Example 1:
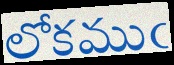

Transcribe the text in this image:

లోకముఁ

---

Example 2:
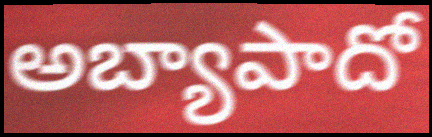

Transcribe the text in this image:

అబ్యాపాదో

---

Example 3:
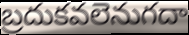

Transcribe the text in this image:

బ్రదుకవలెనుగదా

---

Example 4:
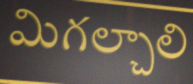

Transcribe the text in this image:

మిగల్చాలి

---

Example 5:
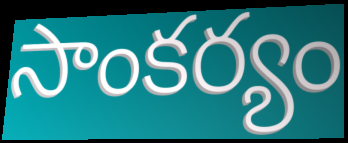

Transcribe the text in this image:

సాంకర్యం